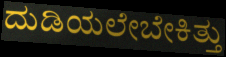
ದುಡಿಯಲೇಬೇಕಿತ್ತು